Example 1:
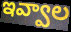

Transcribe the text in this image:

ఇవ్వాల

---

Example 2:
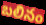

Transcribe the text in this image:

బలినం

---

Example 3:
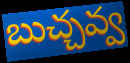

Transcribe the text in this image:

బుచ్చవ్వ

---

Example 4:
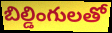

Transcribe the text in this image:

బిల్డింగులతో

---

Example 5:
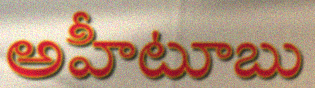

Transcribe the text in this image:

అహీటూబు